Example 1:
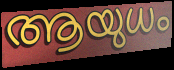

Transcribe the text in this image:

ആയുധം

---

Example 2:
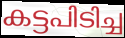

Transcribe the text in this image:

കട്ടപിടിച്ച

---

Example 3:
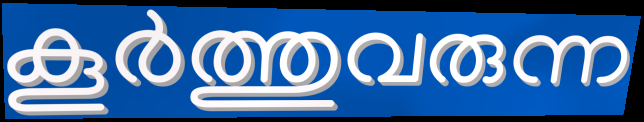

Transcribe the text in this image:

കൂർത്തുവരുന്ന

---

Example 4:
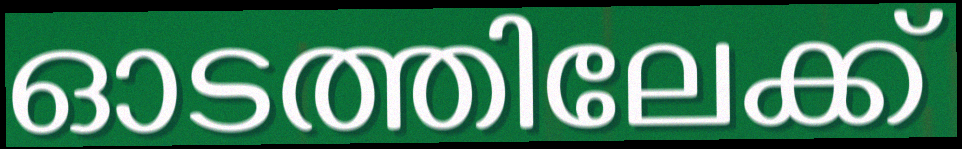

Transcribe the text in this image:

ഓടത്തിലേക്ക്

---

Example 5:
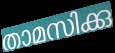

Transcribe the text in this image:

താമസിക്കു